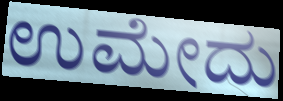
ಉಮೇದು